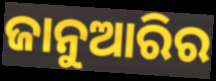
ଜାନୁଆରିର